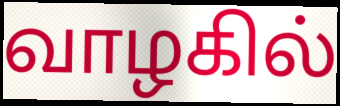
வாழகில்